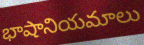
భాషానియమాలు